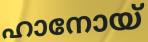
ഹാനോയ്